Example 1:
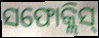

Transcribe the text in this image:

ସଫୋକ୍ଲିସ୍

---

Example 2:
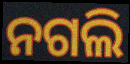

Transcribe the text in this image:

ନଗଲି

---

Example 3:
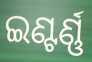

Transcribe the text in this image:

ଇଣ୍ଟର୍ଣ୍ଣ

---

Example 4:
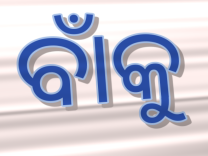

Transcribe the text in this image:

ବାଁକୁ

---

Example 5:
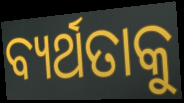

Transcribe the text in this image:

ବ୍ୟର୍ଥତାକୁ